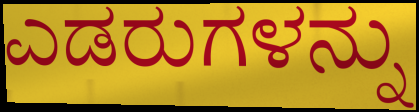
ಎಡರುಗಳನ್ನು